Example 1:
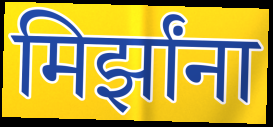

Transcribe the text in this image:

मिर्झांना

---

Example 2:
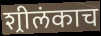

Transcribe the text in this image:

श्रीलंकाच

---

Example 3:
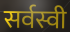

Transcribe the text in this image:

सर्वस्वी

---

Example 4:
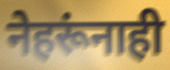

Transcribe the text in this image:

नेहरूंनाही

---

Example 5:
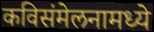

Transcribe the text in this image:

कविसंमेलनामध्ये